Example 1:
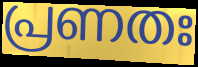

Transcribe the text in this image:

പ്രണതഃ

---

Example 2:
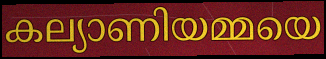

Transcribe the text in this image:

കല്യാണിയമ്മയെ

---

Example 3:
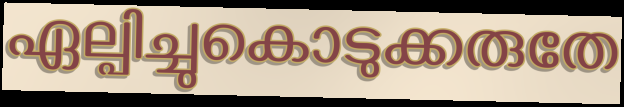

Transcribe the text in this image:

ഏല്പിച്ചുകൊടുക്കരുതേ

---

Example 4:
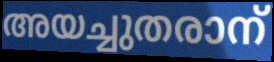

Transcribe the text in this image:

അയച്ചുതരാന്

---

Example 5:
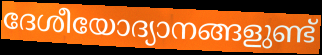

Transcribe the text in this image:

ദേശീയോദ്യാനങ്ങളുണ്ട്